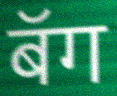
बॅग